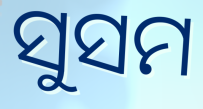
ସୁସମ